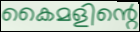
കൈമളിന്റെ